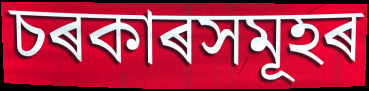
চৰকাৰসমূহৰ